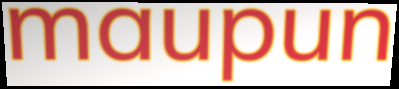
maupun